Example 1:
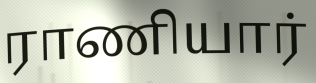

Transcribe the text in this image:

ராணியார்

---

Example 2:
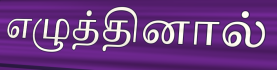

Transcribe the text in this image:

எழுத்தினால்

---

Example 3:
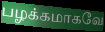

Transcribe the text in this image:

பழக்கமாகவே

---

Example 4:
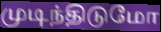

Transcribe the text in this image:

முடிந்திடுமோ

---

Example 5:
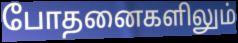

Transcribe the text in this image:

போதனைகளிலும்